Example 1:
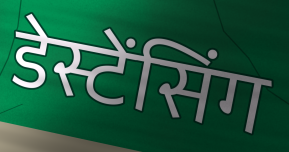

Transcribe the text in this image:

डेस्टेंसिंग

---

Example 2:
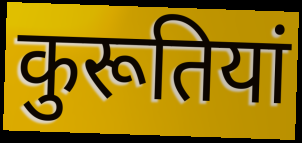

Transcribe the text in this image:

कुरूतियां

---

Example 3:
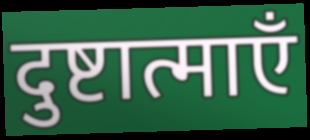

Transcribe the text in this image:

दुष्टात्माएँ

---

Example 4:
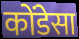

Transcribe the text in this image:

कोंडेसा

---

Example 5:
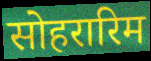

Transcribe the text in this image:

सोहरारिम